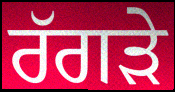
ਰੱਗੜੇ